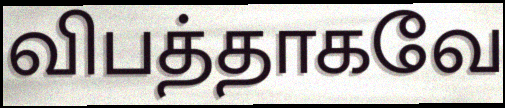
விபத்தாகவே